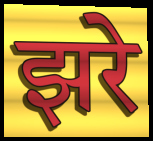
झरे